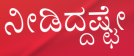
ನೀಡಿದ್ದಷ್ಟೇ